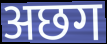
अछग